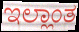
ಇಲ್ಲಾಂತ